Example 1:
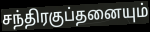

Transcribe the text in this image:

சந்திரகுப்தனையும்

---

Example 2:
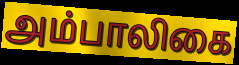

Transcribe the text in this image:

அம்பாலிகை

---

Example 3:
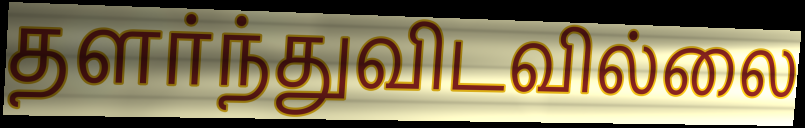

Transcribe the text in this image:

தளர்ந்துவிடவில்லை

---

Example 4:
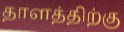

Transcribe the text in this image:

தாளத்திற்கு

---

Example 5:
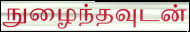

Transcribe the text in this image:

நுழைந்தவுடன்